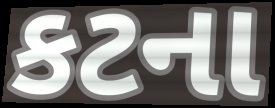
કટના